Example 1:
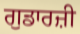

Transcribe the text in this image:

ਗੁਡਾਰਜ਼ੀ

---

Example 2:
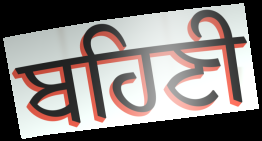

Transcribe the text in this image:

ਬਹਿਣੀ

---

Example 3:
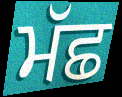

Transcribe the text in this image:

ਮੱਛ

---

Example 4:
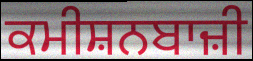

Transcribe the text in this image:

ਕਮੀਸ਼ਨਬਾਜ਼ੀ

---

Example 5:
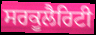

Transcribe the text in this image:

ਸਰਕੂਲੈਰਿਟੀ